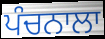
ਪੰਚਨਾਲਾ